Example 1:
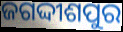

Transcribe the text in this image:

ଜଗଦ୍ଦୀଶପୁର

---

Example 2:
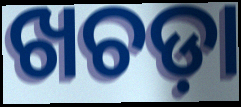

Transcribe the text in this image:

ଖଚଡ଼ା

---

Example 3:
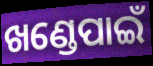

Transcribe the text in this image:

ଖଣ୍ଡେପାଇଁ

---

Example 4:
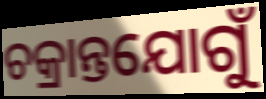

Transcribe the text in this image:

ଚକ୍ରାନ୍ତଯୋଗୁଁ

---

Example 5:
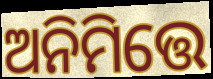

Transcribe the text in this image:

ଅନିମିତ୍ତେ